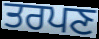
ਤਰਪਣ